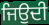
ਜਿਉਦੀ